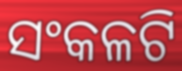
ସଂକଳଟି